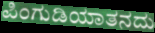
ಪಿಂಗುಡಿಯಾತನದು